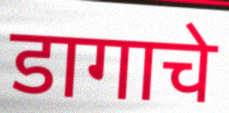
डागाचे